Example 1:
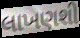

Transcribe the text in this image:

લાખણશી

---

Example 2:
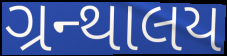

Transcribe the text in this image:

ગ્રન્થાલય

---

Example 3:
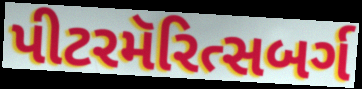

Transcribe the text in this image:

પીટરમૅરિત્સબર્ગ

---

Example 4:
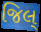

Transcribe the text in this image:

જિલ્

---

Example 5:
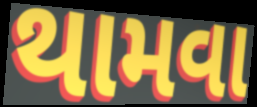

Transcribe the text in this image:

થામવા